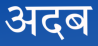
अदब